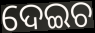
ଦେଇଚ